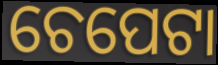
ଚେପେଟା